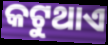
କଟୁଥାଏ